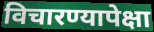
विचारण्यापेक्षा